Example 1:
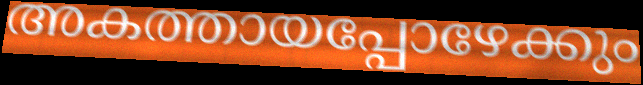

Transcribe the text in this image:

അകത്തായപ്പോഴേക്കും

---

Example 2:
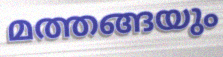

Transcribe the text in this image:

മത്തങ്ങയും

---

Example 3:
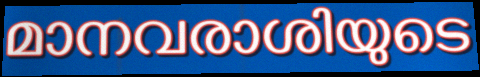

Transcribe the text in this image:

മാനവരാശിയുടെ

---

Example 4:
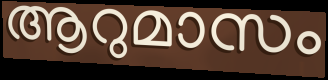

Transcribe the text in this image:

ആറുമാസം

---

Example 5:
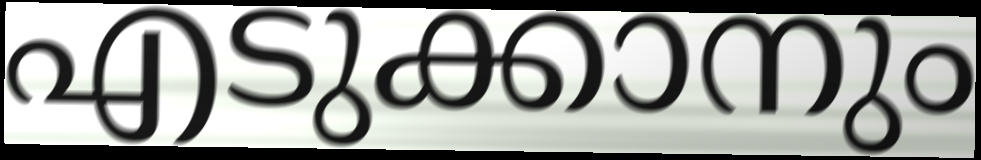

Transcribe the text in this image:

എടുക്കാനും